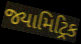
જ્યામિટ્રિક